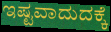
ಇಷ್ಟವಾದುದಕ್ಕೆ